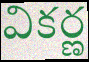
వికర్ణ